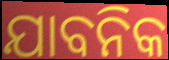
ଯାବନିକ